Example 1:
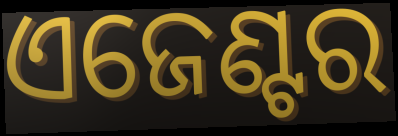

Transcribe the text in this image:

ଏଜେଣ୍ଟର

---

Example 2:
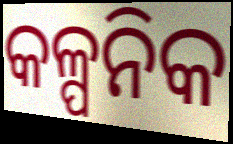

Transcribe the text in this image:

କଳ୍ପନିକ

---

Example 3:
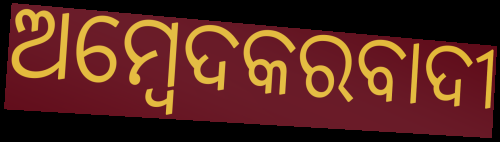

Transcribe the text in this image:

ଅମ୍ବେଦକରବାଦୀ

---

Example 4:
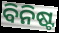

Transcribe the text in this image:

ବିନିଷ୍ଟ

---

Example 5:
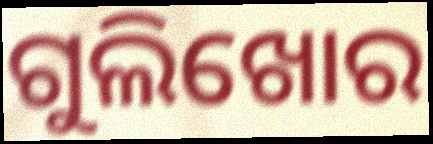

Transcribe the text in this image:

ଗୁଲିଖୋର